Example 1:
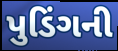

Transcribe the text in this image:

પુડિંગની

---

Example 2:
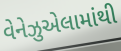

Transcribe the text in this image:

વેનેઝુએલામાંથી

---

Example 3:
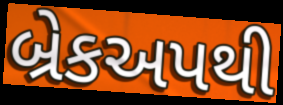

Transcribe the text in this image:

બ્રેકઅપથી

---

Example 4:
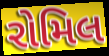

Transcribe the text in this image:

રોમિલ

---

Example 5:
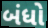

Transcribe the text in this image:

બંધો